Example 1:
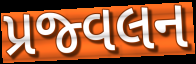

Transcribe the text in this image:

પ્રજ્વલન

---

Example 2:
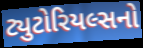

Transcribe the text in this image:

ટ્યુટોરિયલ્સનો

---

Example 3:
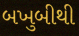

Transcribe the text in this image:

બખુબીથી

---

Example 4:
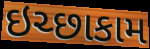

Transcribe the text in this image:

ઇચ્છાકામ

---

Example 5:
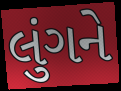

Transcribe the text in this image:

લુંગને